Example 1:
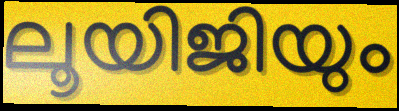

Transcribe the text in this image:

ലൂയിജിയും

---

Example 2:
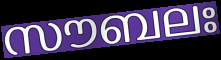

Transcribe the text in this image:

സൗബലഃ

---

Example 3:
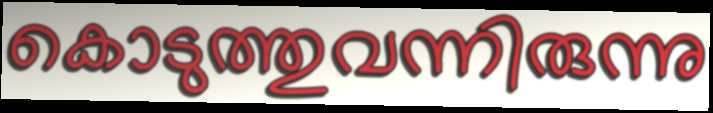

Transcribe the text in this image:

കൊടുത്തുവന്നിരുന്നു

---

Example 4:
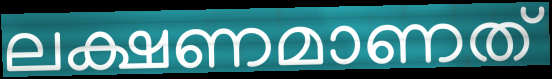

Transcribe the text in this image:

ലക്ഷണമാണത്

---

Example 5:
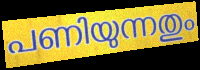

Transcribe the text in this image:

പണിയുന്നതും